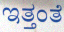
ಇತ್ತಂತೆ